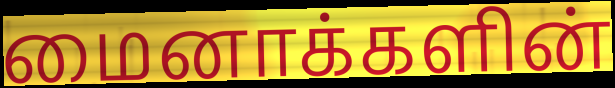
மைனாக்களின்